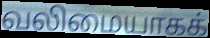
வலிமையாகக்